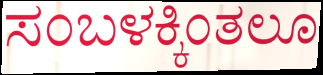
ಸಂಬಳಕ್ಕಿಂತಲೂ